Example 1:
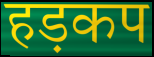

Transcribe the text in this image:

हड़कप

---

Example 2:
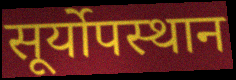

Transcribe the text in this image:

सूर्योपस्थान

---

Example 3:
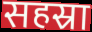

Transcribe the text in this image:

सहस्रा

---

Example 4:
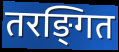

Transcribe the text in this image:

तरङ्गित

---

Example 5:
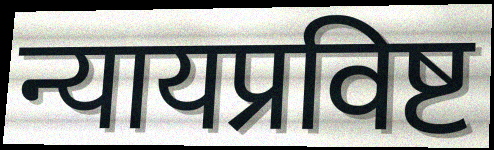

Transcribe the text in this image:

न्यायप्रविष्ट